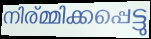
നിര്മ്മിക്കപ്പെട്ടു